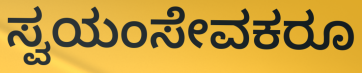
ಸ್ವಯಂಸೇವಕರೂ